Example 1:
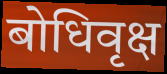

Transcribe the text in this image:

बोधिवृक्ष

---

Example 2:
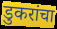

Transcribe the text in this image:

डुकरांचा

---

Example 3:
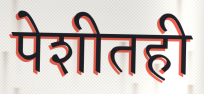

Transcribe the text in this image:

पेशीतही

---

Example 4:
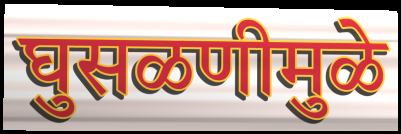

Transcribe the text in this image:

घुसळणीमुळे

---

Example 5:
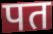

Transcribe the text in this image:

पत